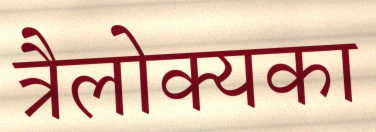
त्रैलोक्यका